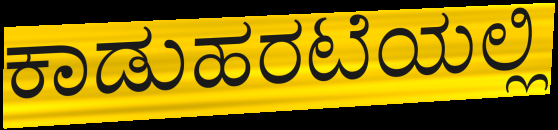
ಕಾಡುಹರಟೆಯಲ್ಲಿ